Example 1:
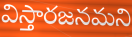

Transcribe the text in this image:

విస్తారజనమని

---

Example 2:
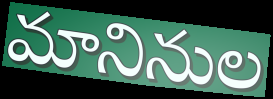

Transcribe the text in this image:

మానినుల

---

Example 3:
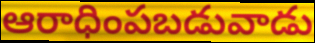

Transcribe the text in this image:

ఆరాధింపబడువాడు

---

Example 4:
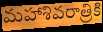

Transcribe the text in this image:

మహాశివరాత్రికి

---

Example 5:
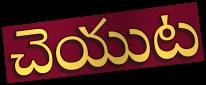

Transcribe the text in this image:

చెయుట